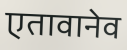
एतावानेव